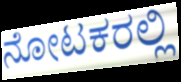
ನೋಟಕರಲ್ಲಿ